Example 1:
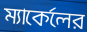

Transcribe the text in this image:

ম্যার্কেলের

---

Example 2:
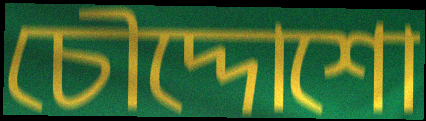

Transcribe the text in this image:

চৌদ্দোশো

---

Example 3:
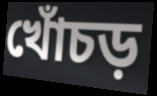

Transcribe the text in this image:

খোঁচড়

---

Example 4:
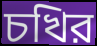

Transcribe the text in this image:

চখির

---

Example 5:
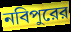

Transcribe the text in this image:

নবিপুরের